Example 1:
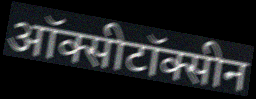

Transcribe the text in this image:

ऑक्सीटॉक्सीन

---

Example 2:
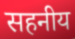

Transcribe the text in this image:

सहनीय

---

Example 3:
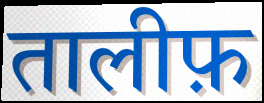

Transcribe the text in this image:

तालीफ़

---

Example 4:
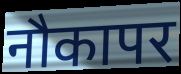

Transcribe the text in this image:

नौकापर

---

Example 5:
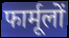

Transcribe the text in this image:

फार्मूलों